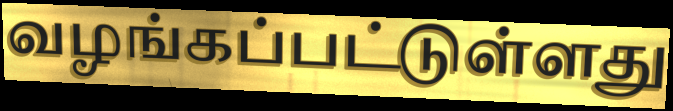
வழங்கப்பட்டுள்ளது